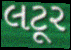
લટૂર